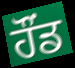
ਹੌਂਡ